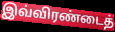
இவ்விரண்டைத்